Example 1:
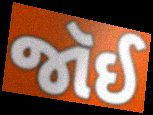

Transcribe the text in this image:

જૉઈ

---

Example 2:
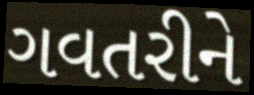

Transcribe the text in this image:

ગવતરીને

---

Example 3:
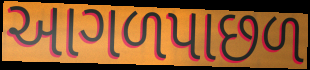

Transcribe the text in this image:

આગળપાછળ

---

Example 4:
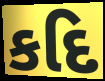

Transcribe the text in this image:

કદિ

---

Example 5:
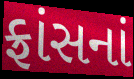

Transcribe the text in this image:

ફ્રાંસનાં